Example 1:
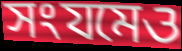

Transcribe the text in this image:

সংযমেও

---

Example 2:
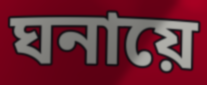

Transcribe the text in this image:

ঘনায়ে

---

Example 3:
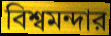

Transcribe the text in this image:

বিশ্বমন্দার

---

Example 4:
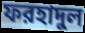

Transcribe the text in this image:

ফরহাদুল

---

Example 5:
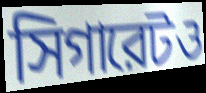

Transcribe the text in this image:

সিগারেটও